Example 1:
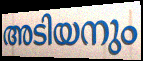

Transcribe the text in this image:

അടിയനും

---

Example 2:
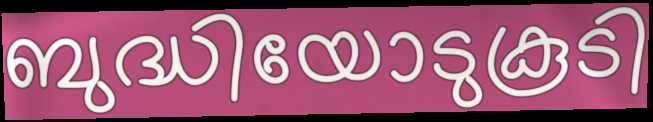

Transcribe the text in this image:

ബുദ്ധിയോടുകൂടി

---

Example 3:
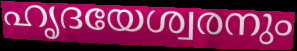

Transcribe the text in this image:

ഹൃദയേശ്വരനും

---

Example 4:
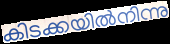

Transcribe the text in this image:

കിടക്കയിൽനിന്നു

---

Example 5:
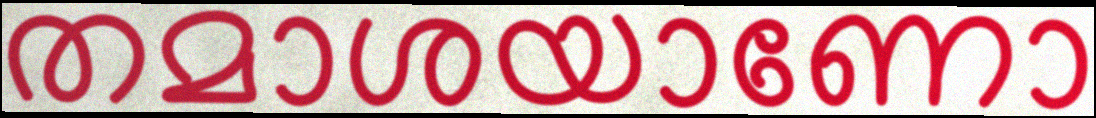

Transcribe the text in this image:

തമാശയാണോ